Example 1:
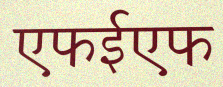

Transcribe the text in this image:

एफईएफ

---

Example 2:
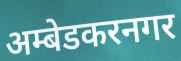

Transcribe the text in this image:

अम्बेडकरनगर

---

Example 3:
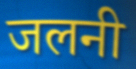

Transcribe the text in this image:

जलनी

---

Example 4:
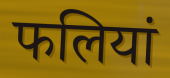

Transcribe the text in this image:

फलियां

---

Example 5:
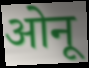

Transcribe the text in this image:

ओनू